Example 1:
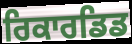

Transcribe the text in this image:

ਰਿਕਾਰਡਿਡ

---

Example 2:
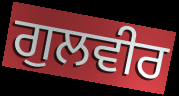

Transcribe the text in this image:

ਗੁਲਵੀਰ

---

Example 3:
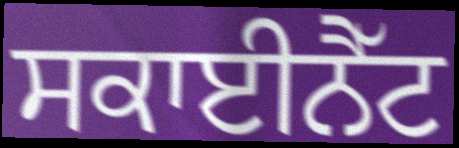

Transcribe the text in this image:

ਸਕਾਈਨੈੱਟ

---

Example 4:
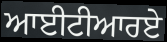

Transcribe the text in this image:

ਆਈਟੀਆਰਏ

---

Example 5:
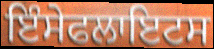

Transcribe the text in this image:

ਇੰਸੇਫਲਾਇਟਸ